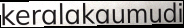
keralakaumudi